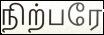
நிற்பரே